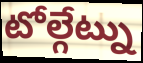
టోల్గేట్ను